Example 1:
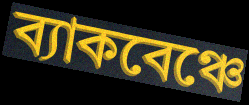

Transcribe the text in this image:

ব্যাকবেঞ্চে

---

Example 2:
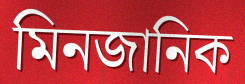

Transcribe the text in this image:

মিনজানিক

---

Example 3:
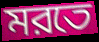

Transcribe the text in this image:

মরতে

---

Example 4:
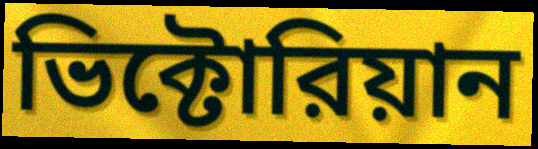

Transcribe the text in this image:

ভিক্টোরিয়ান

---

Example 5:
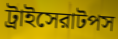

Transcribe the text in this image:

ট্রাইসেরাটপস